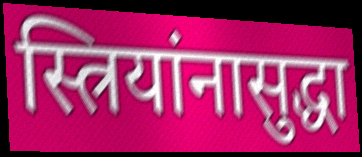
स्त्रियांनासुद्धा